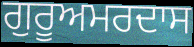
ਗੁਰੂਅਮਰਦਾਸ